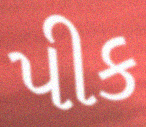
પીક